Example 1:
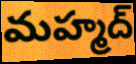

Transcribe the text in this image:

మహ్మద్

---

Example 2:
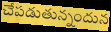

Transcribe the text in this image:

చేపడుతున్నందున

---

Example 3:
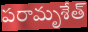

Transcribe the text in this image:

పరామృశేత్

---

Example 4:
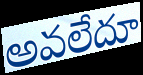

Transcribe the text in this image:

అవలేదూ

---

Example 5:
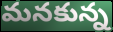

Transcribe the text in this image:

మనకున్న